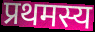
प्रथमस्य